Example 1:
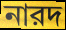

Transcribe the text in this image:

নারদ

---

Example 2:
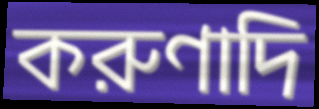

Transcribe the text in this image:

করুণাদি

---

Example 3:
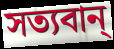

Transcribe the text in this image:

সত্যবান্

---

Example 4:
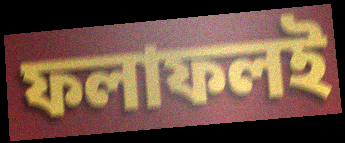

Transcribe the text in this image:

ফলাফলই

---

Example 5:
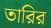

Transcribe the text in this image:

তারির